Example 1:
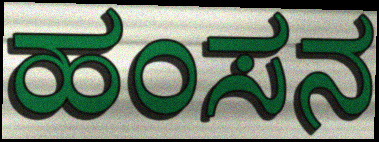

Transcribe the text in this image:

ಹಂಸನ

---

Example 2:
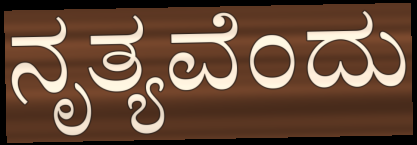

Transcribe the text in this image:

ನೃತ್ಯವೆಂದು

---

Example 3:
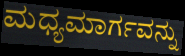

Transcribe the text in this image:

ಮಧ್ಯಮಾರ್ಗವನ್ನು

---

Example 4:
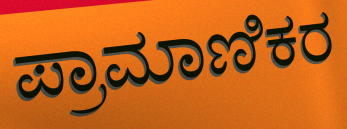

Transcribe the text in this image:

ಪ್ರಾಮಾಣಿಕರ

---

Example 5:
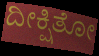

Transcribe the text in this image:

ದೀಕ್ಷಿತೋ